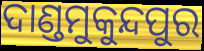
ଦାଣ୍ଡମୁକୁନ୍ଦପୁର